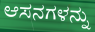
ಆಸನಗಳನ್ನು